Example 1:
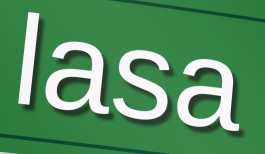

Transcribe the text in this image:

lasa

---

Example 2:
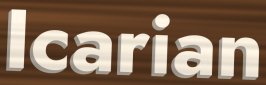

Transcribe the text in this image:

Icarian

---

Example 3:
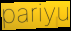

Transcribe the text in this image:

pariyu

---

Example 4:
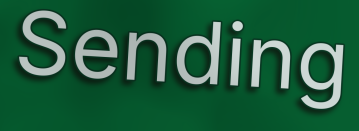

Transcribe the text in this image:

Sending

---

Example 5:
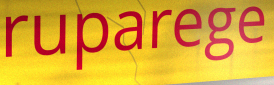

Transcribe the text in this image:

ruparege